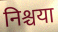
निश्चया